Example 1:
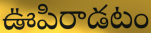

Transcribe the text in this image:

ఊపిరాడటం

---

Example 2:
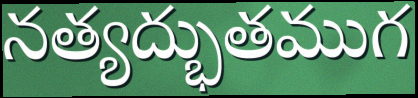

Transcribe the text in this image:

నత్యద్భుతముగ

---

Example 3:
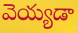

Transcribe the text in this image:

వెయ్యడా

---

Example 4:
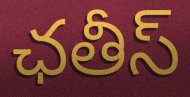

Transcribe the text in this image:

ఛతీస్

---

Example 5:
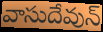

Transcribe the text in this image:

వాసుదేవున్